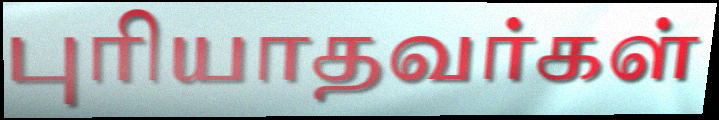
புரியாதவர்கள்